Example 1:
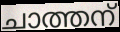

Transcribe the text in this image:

ചാത്തന്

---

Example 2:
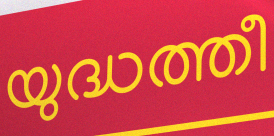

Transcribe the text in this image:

യുദ്ധത്തീ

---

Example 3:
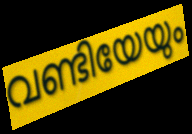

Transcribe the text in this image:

വണ്ടിയേയും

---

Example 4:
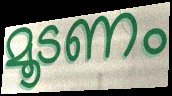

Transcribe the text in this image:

മൂടണം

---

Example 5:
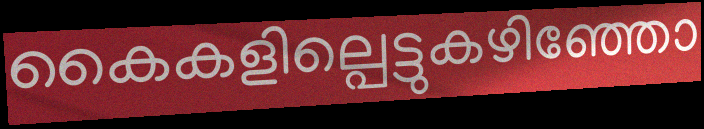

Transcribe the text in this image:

കൈകളില്പെട്ടുകഴിഞ്ഞോ